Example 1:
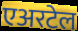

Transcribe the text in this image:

एअरटेल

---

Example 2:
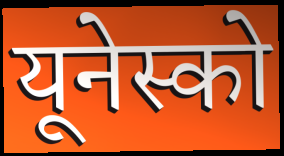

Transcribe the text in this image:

यूनेस्को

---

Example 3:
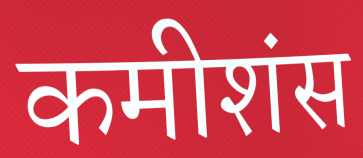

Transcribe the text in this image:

कमीशंस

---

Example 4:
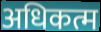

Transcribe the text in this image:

अधिकत्म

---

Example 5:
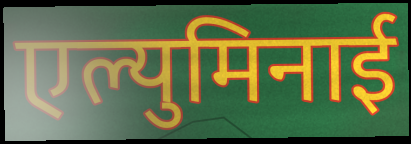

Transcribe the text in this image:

एल्युमिनाई